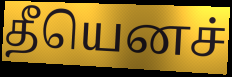
தீயெனச்